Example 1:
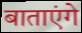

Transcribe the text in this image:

बाताएंगे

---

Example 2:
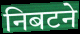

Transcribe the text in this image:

निबटने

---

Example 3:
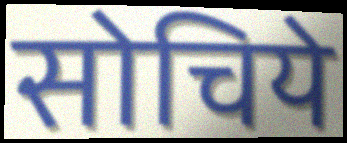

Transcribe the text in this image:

सोचिये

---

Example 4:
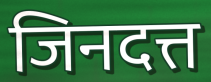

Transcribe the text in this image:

जिनदत्त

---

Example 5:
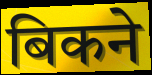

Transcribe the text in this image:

बिकने